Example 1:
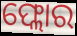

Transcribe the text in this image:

ଫ୍ଲୋର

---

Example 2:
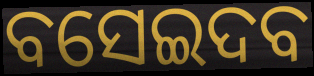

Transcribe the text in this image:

ବସେଇଦବ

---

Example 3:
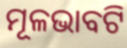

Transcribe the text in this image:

ମୂଳଭାବଟି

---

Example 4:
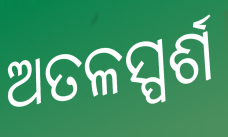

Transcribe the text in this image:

ଅତଳସ୍ପର୍ଶ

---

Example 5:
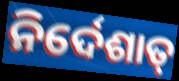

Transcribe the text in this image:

ନିର୍ଦେଶାତ୍